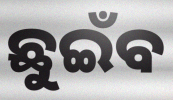
ଛୁଇଁବ